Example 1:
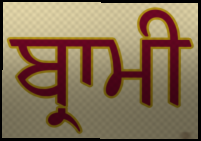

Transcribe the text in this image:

ਬ੍ਰਾਮੀ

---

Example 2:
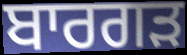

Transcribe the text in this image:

ਬਾਰਗੜ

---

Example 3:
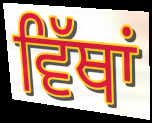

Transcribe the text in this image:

ਵਿੱਥਾਂ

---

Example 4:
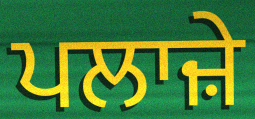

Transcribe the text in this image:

ਪਲਾਜ਼ੇ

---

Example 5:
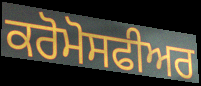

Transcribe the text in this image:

ਕਰੋਮੋਸਫੀਅਰ